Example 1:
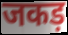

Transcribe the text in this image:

जकड़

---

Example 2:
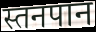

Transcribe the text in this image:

स्तनपान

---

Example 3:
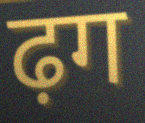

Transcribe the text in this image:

ढ़ग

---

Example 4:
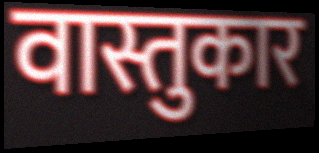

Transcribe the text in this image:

वास्तुकार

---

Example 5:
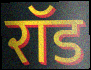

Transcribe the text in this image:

रॉड